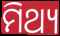
ମିଥ୍ୟ